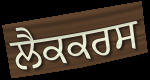
ਲੈਕਕਰਸ